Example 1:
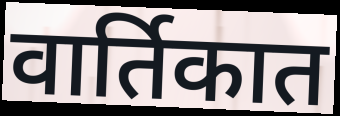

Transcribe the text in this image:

वार्तिकात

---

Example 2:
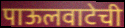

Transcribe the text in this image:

पाऊलवाटेची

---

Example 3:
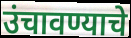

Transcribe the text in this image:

उंचावण्याचे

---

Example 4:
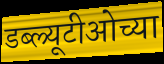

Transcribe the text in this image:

डब्ल्यूटीओच्या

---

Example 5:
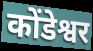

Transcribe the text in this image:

कोंडेश्वर